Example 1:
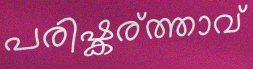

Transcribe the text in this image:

പരിഷ്കര്ത്താവ്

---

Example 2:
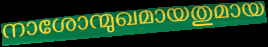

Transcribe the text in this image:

നാശോന്മുഖമായതുമായ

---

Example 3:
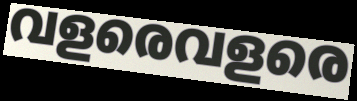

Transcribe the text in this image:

വളരെവളരെ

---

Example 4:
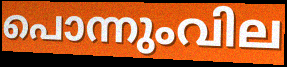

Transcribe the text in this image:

പൊന്നുംവില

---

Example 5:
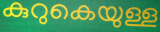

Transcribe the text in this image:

കുറുകെയുള്ള